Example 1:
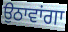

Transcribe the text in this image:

ਉਠਾਵਾਂਗਾ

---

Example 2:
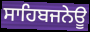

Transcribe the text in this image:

ਸਾਹਿਬਜਨੇਊ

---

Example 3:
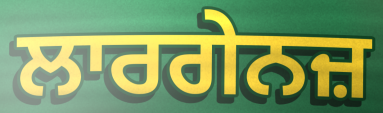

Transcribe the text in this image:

ਲਾਰਗੇਨਜ਼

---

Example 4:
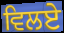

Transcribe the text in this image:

ਵਿਲਏ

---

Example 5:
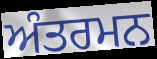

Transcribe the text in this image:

ਅੰਤਰਮਨ